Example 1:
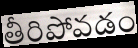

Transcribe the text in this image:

తీరిపోవడం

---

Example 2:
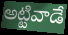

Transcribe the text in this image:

అట్టివాడే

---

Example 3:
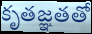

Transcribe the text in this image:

కృతజ్ఞతతో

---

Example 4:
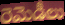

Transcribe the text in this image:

రెమెడీలు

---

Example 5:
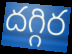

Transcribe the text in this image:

దగ్గిర